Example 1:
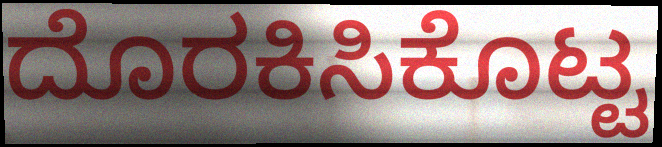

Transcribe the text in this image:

ದೊರಕಿಸಿಕೊಟ್ಟ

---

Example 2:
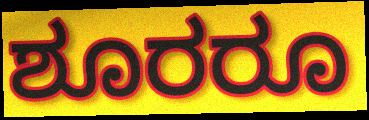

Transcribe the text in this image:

ಶೂರರೂ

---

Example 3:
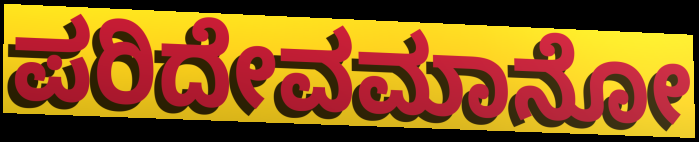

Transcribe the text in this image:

ಪರಿದೇವಮಾನೋ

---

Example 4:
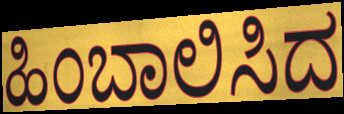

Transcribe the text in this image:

ಹಿಂಬಾಲಿಸಿದ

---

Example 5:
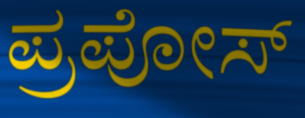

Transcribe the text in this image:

ಪ್ರಪೋಸ್